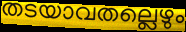
തടയാവതല്ലെഴും